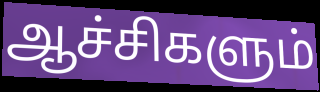
ஆச்சிகளும்